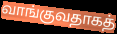
வாங்குவதாகத்